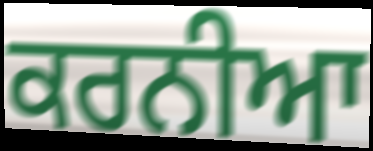
ਕਰਨੀਆ